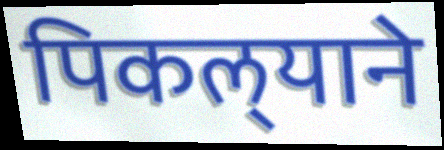
पिकल्याने